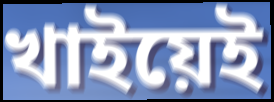
খাইয়েই